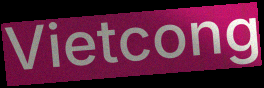
Vietcong